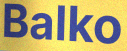
Balko